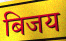
बिजय